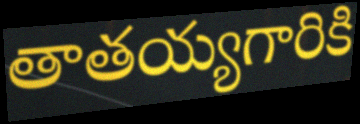
తాతయ్యగారికి